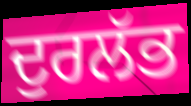
ਦੁਰਲੱਭ